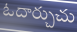
ఓదార్చుచు